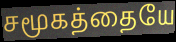
சமூகத்தையே